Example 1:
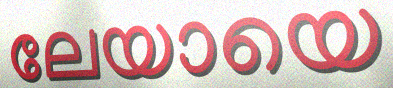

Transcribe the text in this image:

ലേയായെ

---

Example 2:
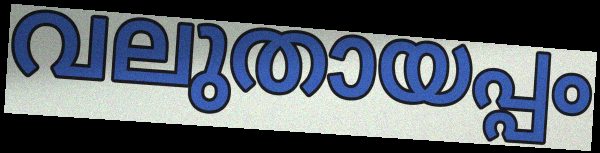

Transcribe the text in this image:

വലുതായപ്പം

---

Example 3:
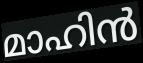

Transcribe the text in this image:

മാഹിൻ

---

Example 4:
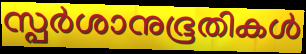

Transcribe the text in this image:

സ്പർശാനുഭൂതികൾ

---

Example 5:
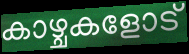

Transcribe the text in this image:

കാഴ്ചകളോട്